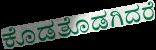
ಕೊಡತೊಡಗಿದರೆ